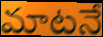
మాటనే